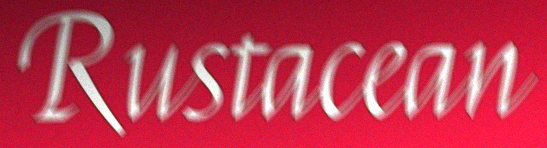
Rustacean